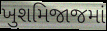
ખુશમિજાજમાં